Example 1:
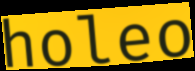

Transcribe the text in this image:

holeo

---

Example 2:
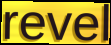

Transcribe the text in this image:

revel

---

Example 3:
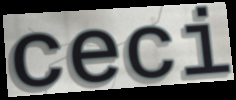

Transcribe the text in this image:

ceci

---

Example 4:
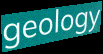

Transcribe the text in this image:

geology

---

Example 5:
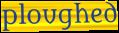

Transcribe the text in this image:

ploughed